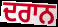
ਦਰਾਨ